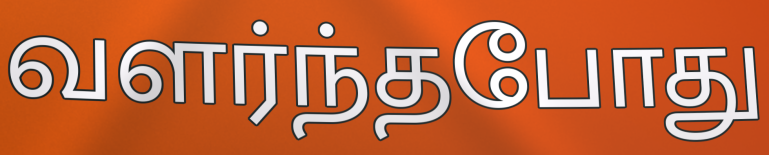
வளர்ந்தபோது